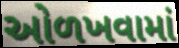
ઓળખવામાં